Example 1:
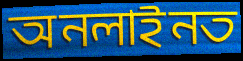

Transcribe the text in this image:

অনলাইনত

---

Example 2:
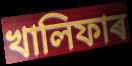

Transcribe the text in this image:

খালিফাৰ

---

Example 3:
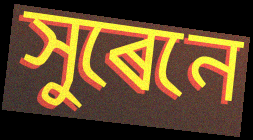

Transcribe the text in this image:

সুৰেনে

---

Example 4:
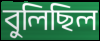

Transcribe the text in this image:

বুলিছিল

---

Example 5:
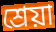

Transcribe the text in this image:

শ্ৰেয়া